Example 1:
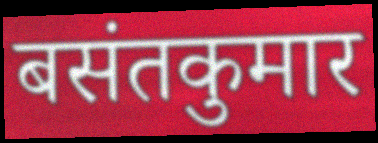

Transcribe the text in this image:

बसंतकुमार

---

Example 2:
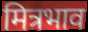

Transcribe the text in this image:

मित्रभाव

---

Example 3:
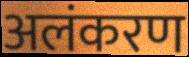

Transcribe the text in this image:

अलंकरण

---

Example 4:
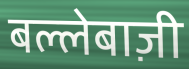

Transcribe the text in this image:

बल्लेबाज़ी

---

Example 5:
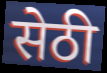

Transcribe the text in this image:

सेठी